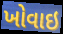
ખોવાઇ